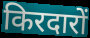
किरदारों